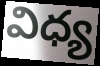
విధ్య